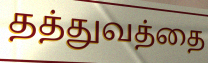
தத்துவத்தை